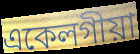
একেলগীয়া